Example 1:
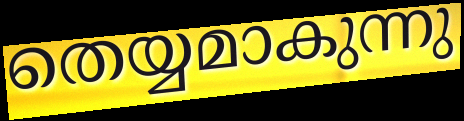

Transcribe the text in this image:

തെയ്യമാകുന്നു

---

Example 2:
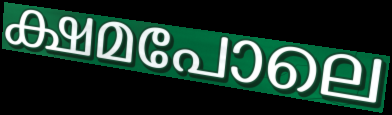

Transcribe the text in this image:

ക്ഷമപോലെ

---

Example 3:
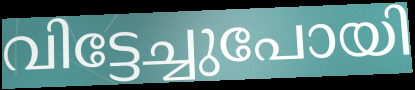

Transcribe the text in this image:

വിട്ടേച്ചുപോയി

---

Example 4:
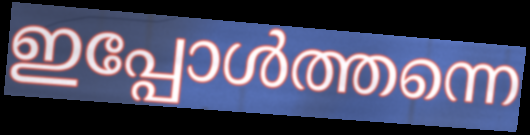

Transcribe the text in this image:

ഇപ്പോൾത്തന്നെ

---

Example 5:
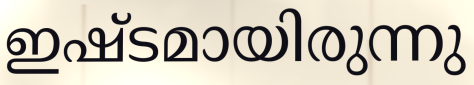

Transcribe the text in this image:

ഇഷ്ടമായിരുന്നു